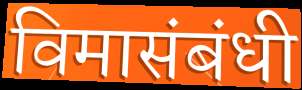
विमासंबंधी